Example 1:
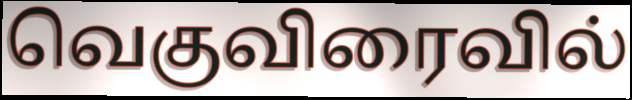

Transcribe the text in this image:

வெகுவிரைவில்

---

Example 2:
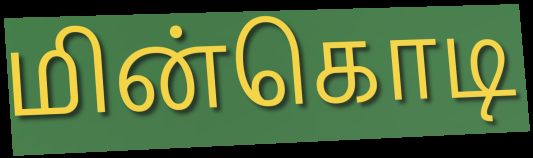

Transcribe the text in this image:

மின்கொடி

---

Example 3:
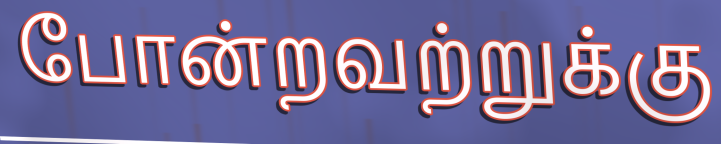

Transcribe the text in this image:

போன்றவற்றுக்கு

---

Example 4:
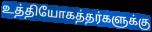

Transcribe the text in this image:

உத்தியோகத்தர்களுக்கு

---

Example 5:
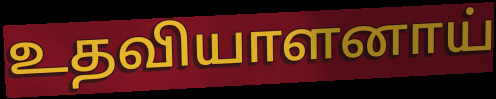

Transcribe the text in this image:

உதவியாளனாய்